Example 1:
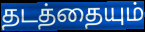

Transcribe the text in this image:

தடத்தையும்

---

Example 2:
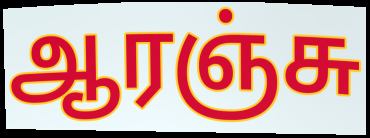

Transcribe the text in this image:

ஆரஞ்சு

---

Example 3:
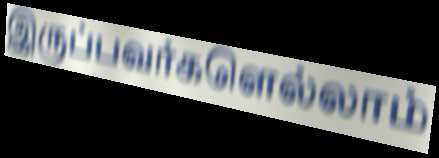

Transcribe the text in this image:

இருப்பவர்களெல்லாம்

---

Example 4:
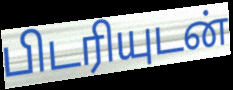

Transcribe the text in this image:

பிடரியுடன்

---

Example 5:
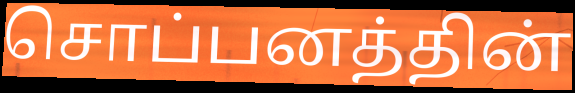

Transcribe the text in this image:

சொப்பனத்தின்